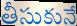
తీసుకునే